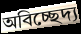
অবিচ্ছেদ্য